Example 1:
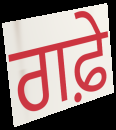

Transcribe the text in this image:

ਗਫ਼ੇ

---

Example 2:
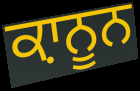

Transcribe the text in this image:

ਕ਼ਾਨੂਨ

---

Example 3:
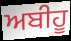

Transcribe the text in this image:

ਅਬੀਹੂ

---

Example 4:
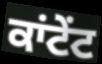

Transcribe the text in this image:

ਕਾਂਟੇਂਟ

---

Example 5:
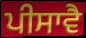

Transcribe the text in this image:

ਪੀਸਾਵੈ